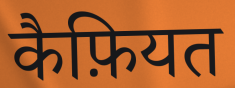
कैफ़ियत